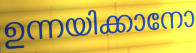
ഉന്നയിക്കാനോ